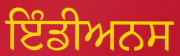
ਇੰਡੀਅਨਸ